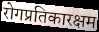
रोगप्रतिकारक्षम